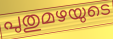
പുതുമഴയുടെ